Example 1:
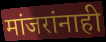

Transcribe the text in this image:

मांजरांनाही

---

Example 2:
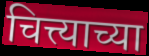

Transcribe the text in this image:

चित्त्याच्या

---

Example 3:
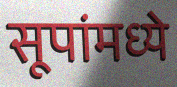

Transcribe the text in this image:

सूपांमध्ये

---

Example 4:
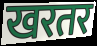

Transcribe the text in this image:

खरतर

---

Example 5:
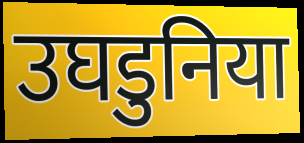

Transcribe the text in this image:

उघडुनिया